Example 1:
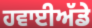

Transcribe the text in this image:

ਹਵਾਈਅੱਡੇ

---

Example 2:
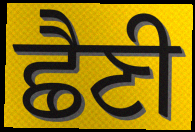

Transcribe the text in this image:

ਛੈਣੀ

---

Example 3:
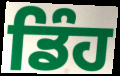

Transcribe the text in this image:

ਡਿੰਹ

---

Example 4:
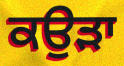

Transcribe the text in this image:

ਕਉੜਾ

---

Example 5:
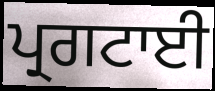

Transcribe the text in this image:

ਪ੍ਰਗਟਾਈ